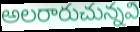
అలరారుచున్నవి